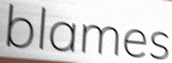
blames